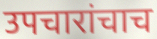
उपचारांचाच